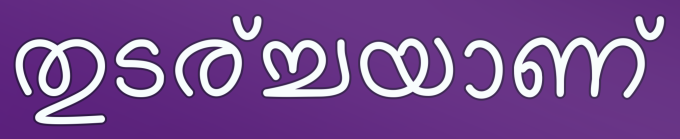
തുടര്ച്ചയാണ്